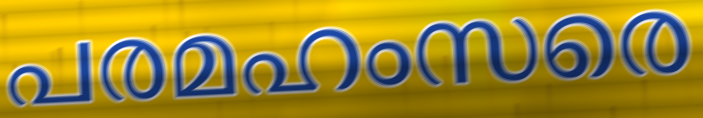
പരമഹംസരെ